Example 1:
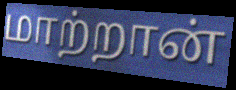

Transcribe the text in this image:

மாற்றான்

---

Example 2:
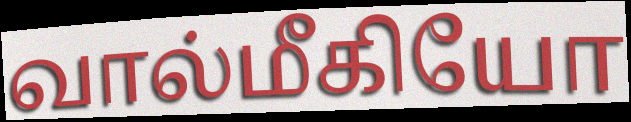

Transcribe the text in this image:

வால்மீகியோ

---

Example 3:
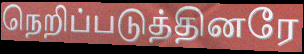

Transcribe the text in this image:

நெறிப்படுத்தினரே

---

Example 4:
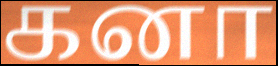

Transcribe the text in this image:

கனா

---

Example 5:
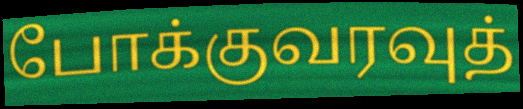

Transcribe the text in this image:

போக்குவரவுத்